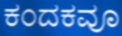
ಕಂದಕವೂ